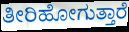
ತೀರಿಹೋಗುತ್ತಾರೆ